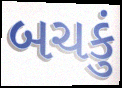
બચકું